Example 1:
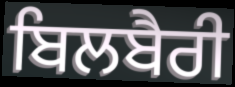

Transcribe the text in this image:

ਬਿਲਬੈਰੀ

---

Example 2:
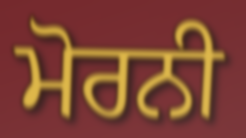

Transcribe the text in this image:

ਮੋਰਨੀ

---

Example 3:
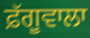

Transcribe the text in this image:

ਫ਼ੱਗੂਵਾਲਾ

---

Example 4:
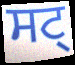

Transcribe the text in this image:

ਸਟ੍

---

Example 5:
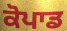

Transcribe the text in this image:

ਕੋਪਾਡ